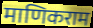
माणिकराम